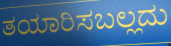
ತಯಾರಿಸಬಲ್ಲದು